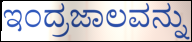
ಇಂದ್ರಜಾಲವನ್ನು